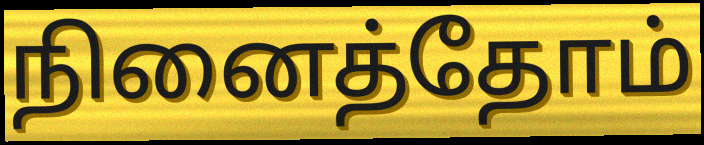
நினைத்தோம்